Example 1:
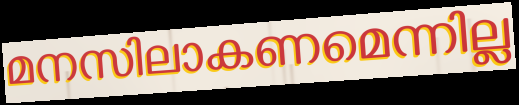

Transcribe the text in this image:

മനസിലാകണമെന്നില്ല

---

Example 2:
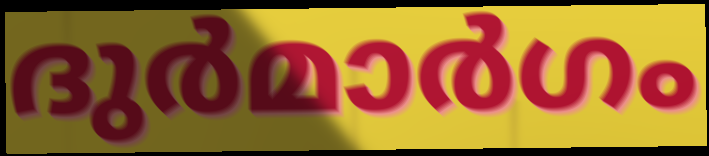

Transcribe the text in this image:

ദുർമാർഗം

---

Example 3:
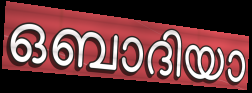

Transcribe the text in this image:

ഒബാദിയാ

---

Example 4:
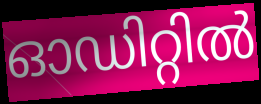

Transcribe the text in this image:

ഓഡിറ്റിൽ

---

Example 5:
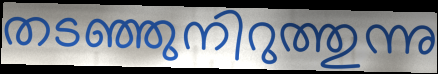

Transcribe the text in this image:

തടഞ്ഞുനിറുത്തുന്നു